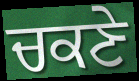
ਚਕਣੇ